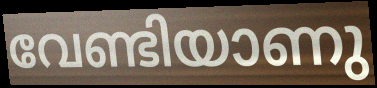
വേണ്ടിയാണു